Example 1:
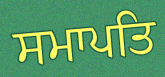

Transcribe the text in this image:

ਸਮਾਪਤਿ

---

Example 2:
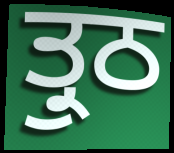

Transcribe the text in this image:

ਤ੍ਰੁਠ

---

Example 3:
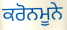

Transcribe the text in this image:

ਕਰੋਨਮੂਨੇ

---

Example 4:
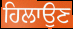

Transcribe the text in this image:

ਹਿਲਾਉਣ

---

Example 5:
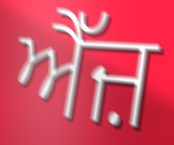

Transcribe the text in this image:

ਐੱਜ਼